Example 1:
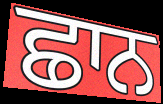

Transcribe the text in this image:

ਛਾਨ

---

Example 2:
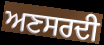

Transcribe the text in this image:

ਅਣਸਰਦੀ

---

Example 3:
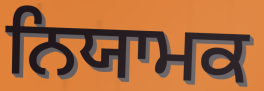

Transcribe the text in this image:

ਨਿਯਾਮਕ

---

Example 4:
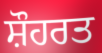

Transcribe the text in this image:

ਸ਼ੌਹਰਤ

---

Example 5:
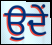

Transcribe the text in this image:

ਉਦੇਂ